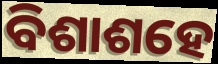
ବିଶାଶହେ